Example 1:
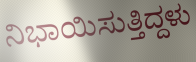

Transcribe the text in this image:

ನಿಭಾಯಿಸುತ್ತಿದ್ದಳು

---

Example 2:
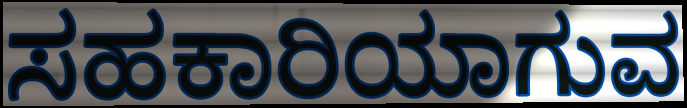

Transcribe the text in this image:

ಸಹಕಾರಿಯಾಗುವ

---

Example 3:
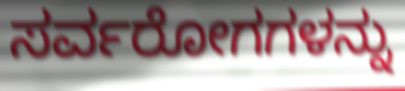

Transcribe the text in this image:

ಸರ್ವರೋಗಗಳನ್ನು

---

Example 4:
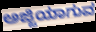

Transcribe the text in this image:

ಅಜ್ಜಿಯಾಗುವ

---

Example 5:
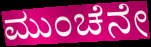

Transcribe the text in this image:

ಮುಂಚೆನೇ